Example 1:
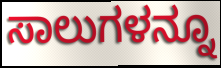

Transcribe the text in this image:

ಸಾಲುಗಳನ್ನೂ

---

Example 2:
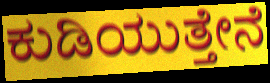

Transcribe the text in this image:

ಕುಡಿಯುತ್ತೇನೆ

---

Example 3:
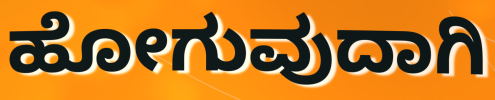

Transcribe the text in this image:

ಹೋಗುವುದಾಗಿ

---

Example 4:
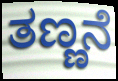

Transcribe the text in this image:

ತಣ್ಣನೆ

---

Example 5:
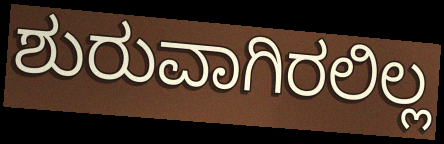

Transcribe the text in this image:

ಶುರುವಾಗಿರಲಿಲ್ಲ